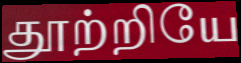
தூற்றியே